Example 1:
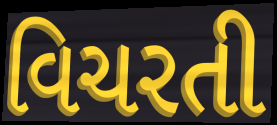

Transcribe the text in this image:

વિચરતી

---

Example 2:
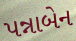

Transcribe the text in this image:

પન્નાબેન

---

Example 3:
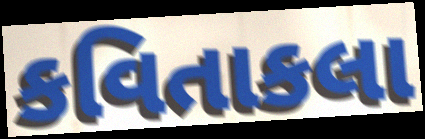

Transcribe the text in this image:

કવિતાકલા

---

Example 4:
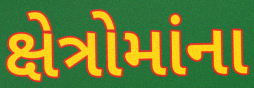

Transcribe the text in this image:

ક્ષેત્રોમાંના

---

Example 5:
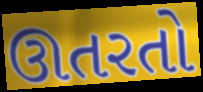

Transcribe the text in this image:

ઊતરતો